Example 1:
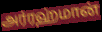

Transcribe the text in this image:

அர்ரஹ்மான்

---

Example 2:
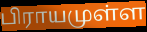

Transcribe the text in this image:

பிராயமுள்ள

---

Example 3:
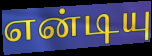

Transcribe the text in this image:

என்டியு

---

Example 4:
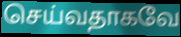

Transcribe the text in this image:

செய்வதாகவே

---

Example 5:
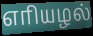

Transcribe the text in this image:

எரியழல்